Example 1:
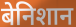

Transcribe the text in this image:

बेनिशान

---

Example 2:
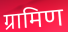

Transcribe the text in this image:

ग्रामिण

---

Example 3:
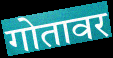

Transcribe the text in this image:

गोतावर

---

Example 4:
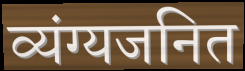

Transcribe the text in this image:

व्यंग्यजनित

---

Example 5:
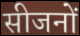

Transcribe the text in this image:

सीजनों